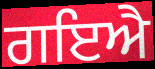
ਗਇਐ